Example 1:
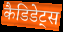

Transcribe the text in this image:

कैडिडेट्स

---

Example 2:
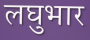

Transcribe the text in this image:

लघुभार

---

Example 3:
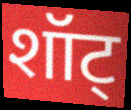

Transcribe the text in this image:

शॉट्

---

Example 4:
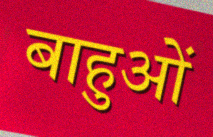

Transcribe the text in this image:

बाहुओं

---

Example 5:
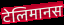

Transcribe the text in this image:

टेलिमानस